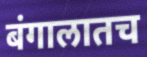
बंगालातच